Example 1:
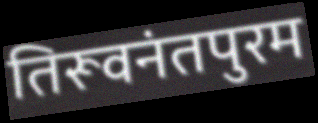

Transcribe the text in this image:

तिरूवनंतपुरम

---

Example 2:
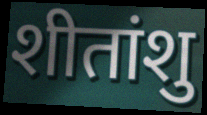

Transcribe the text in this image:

शीतांशु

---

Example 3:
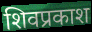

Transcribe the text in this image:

शिवप्रकाश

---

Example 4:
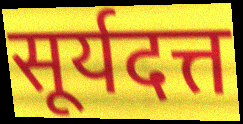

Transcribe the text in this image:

सूर्यदत्त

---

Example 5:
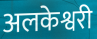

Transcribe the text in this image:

अलकेश्वरी